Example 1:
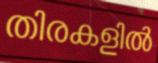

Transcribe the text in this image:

തിരകളിൽ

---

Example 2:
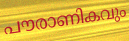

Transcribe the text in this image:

പൗരാണികവും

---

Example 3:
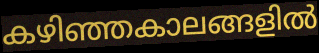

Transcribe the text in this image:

കഴിഞ്ഞകാലങ്ങളിൽ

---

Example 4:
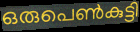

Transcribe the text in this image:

ഒരുപെൺകുട്ടി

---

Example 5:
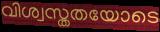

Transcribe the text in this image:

വിശ്വസ്തതയോടെ